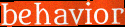
behavior